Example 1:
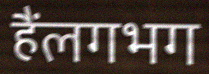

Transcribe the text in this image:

हैंलगभग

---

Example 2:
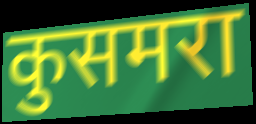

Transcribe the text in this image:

कुसमरा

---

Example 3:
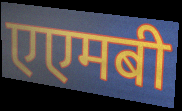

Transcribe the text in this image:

एएमबी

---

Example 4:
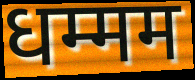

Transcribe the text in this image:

धम्मम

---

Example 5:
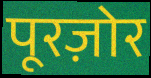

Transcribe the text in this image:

पूरज़ोर